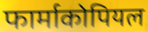
फार्माकोपियल